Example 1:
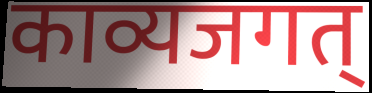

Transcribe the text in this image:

काव्यजगत्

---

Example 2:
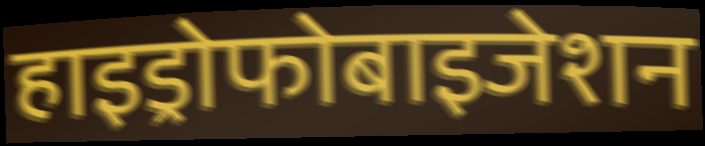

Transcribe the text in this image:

हाइड्रोफोबाइजेशन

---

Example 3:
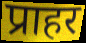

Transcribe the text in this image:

प्राहर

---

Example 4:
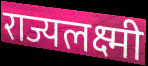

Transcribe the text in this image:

राज्यलक्ष्मी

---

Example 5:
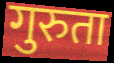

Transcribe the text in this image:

गुरुता